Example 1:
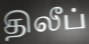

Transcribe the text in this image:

திலீப்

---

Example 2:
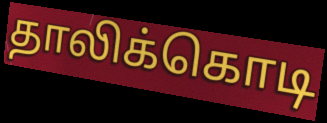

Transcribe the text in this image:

தாலிக்கொடி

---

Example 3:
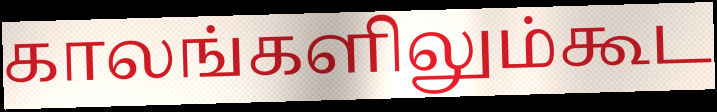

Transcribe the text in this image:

காலங்களிலும்கூட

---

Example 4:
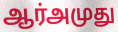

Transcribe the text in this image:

ஆர்அமுது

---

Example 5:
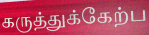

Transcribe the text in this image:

கருத்துக்கேற்ப